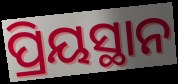
ପ୍ରିୟସ୍ଥାନ